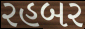
રહબર